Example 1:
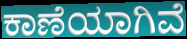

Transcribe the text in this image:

ಕಾಣೆಯಾಗಿವೆ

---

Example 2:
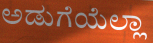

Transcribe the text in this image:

ಅಡುಗೆಯೆಲ್ಲಾ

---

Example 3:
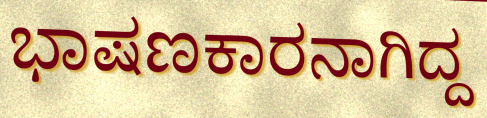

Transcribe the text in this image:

ಭಾಷಣಕಾರನಾಗಿದ್ದ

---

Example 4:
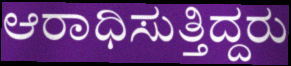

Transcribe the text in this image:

ಆರಾಧಿಸುತ್ತಿದ್ದರು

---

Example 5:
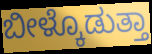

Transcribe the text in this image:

ಬೀಳ್ಕೊಡುತ್ತಾ